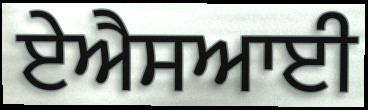
ਏਐਸਆਈ